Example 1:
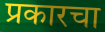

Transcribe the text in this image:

प्रकारचा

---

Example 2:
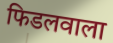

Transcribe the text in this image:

फिडलवाला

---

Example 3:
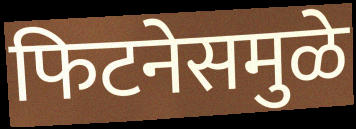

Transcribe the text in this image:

फिटनेसमुळे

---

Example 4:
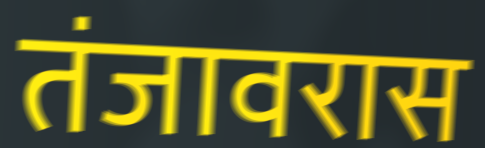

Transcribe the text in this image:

तंजावरास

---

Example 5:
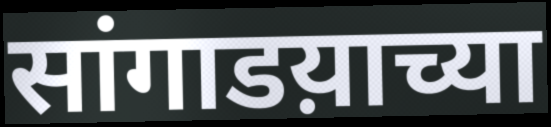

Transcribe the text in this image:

सांगाडय़ाच्या